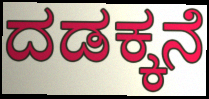
ದಡಕ್ಕನೆ